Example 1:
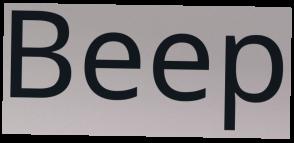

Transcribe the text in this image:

Beep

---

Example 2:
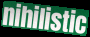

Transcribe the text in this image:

nihilistic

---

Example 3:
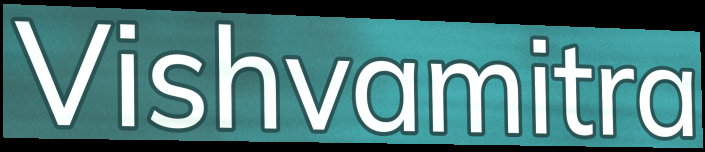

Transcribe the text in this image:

Vishvamitra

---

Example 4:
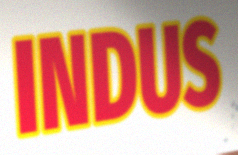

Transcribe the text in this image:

INDUS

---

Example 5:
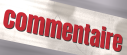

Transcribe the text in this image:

commentaire